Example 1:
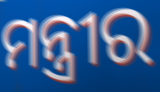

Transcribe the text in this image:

ମନ୍ତ୍ରୀର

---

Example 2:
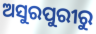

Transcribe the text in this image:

ଅସୁରପୁରୀରୁ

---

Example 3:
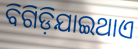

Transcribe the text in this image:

ବିଗିଡ଼ିଯାଇଥାଏ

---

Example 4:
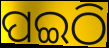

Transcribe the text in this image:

ପଇଠି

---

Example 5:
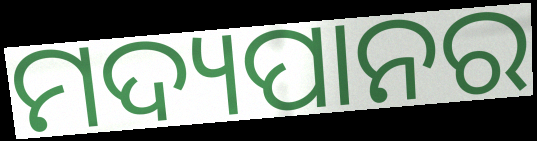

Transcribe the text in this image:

ମଦ୍ୟପାନର